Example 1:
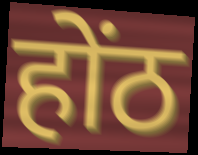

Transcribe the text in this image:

होंठ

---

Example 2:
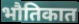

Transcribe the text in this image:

भौतिकात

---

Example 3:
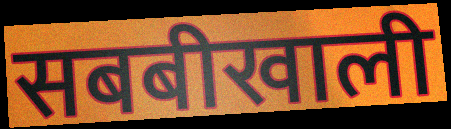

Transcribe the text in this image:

सबबीखाली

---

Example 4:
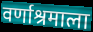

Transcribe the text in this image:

वर्णाश्रमाला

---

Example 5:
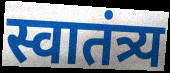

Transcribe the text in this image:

स्वातंत्र्य